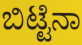
ಬಿಟ್ಟೆನಾ